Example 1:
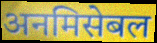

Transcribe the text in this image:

अनमिसेबल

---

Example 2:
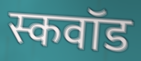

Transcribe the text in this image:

स्कवॉड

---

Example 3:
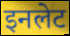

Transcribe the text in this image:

इनलेट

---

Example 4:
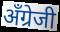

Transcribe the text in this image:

अँग्रेजी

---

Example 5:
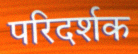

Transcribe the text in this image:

परिदर्शक